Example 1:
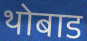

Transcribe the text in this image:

थोबाड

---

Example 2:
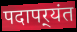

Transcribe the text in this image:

पदापर्यंत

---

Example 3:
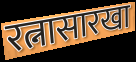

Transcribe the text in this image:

रत्नासारखा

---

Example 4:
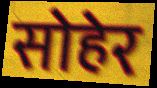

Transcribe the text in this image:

सोहेर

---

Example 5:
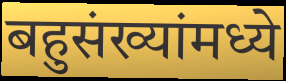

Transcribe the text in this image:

बहुसंख्यांमध्ये